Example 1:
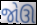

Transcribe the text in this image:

જોઊ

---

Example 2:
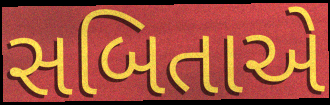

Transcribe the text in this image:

સબિતાએ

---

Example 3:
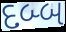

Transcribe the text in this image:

દબ્બ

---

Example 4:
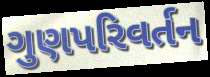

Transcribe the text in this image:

ગુણપરિવર્તન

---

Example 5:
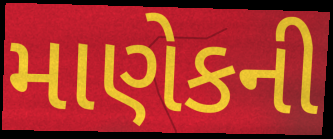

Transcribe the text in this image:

માણેકની